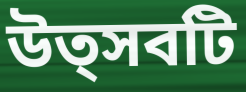
উত্সবটি